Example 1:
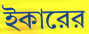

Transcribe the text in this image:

ইকারের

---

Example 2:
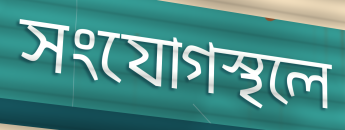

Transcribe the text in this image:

সংযোগস্থলে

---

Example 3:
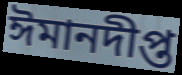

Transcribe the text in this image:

ঈমানদীপ্ত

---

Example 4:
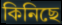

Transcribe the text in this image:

কিনিছে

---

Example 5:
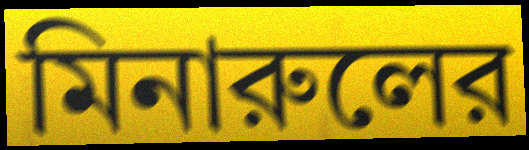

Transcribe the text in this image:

মিনারুলের